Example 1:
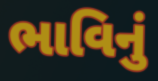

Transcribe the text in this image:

ભાવિનું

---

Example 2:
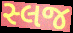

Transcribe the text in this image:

સ્લજ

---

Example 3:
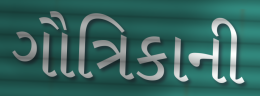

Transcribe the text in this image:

ગૌત્રિકાની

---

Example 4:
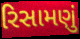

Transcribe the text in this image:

રિસામણું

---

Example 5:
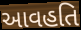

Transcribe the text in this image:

આવહતિ